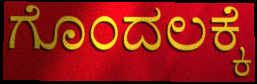
ಗೊಂದಲಕ್ಕೆ